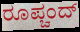
ರೂಪ್ಚಂದ್